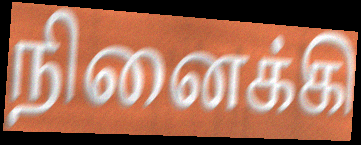
நினைக்கி